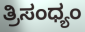
ತ್ರಿಸಂಧ್ಯಂ